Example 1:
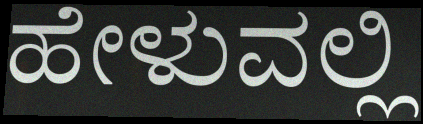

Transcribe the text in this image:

ಹೇಳುವಲ್ಲಿ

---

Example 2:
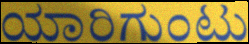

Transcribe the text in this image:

ಯಾರಿಗುಂಟು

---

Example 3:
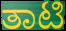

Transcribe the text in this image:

ತಾಟಿ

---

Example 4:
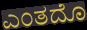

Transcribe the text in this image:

ಎಂತದೊ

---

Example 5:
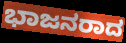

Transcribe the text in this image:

ಭಾಜನರಾದ